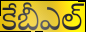
కేబీఎల్